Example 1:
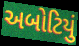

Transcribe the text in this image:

અબોટિયું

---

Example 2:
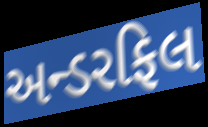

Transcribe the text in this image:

અન્ડરફિલ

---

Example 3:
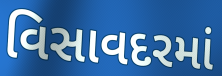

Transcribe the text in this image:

વિસાવદરમાં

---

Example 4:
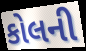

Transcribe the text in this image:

કોલની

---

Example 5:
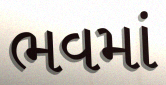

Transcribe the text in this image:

ભવમાં